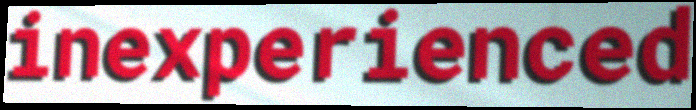
inexperienced